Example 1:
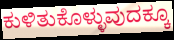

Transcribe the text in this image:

ಕುಳಿತುಕೊಳ್ಳುವುದಕ್ಕೂ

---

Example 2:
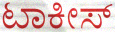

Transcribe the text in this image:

ಟಾಕೀಸ್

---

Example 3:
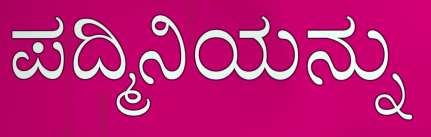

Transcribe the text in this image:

ಪದ್ಮಿನಿಯನ್ನು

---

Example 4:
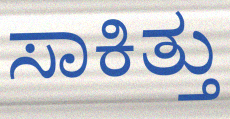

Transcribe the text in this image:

ಸಾಕಿತ್ತು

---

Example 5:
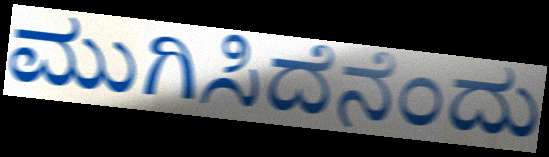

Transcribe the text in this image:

ಮುಗಿಸಿದೆನೆಂದು